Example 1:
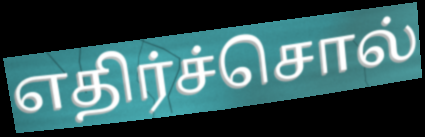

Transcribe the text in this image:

எதிர்ச்சொல்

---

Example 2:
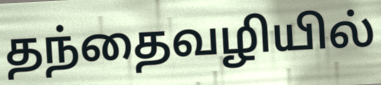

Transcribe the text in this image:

தந்தைவழியில்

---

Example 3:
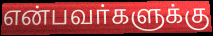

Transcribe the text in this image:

என்பவர்களுக்கு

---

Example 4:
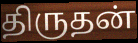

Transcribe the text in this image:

திருதன்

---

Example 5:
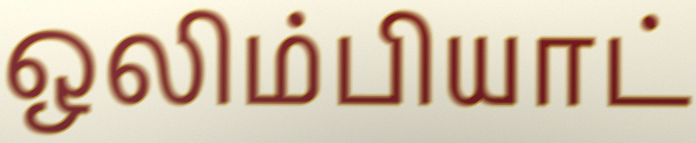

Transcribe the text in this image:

ஒலிம்பியாட்